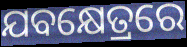
ଯବକ୍ଷେତ୍ରରେ